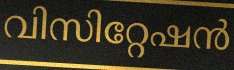
വിസിറ്റേഷൻ